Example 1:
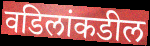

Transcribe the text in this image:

वडिलांकडील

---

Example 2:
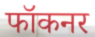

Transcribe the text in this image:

फॉकनर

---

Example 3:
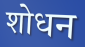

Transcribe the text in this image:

शोधन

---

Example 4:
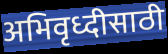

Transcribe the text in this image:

अभिवृध्दीसाठी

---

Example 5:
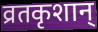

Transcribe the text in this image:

व्रतकृशान्